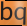
bq